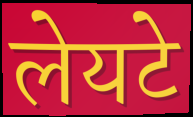
लेयटे